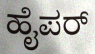
ಹೈಪರ್